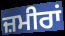
ਜ਼ਮੀਰਾਂ